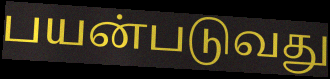
பயன்படுவது